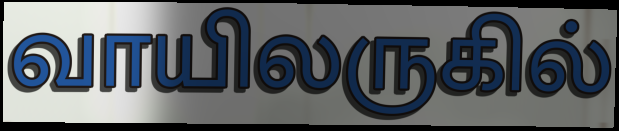
வாயிலருகில்